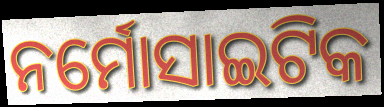
ନର୍ମୋସାଇଟିକ